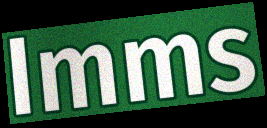
Imms